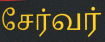
சேர்வர்